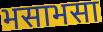
भसाभसा